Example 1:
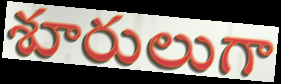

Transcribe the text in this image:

శూరులుగా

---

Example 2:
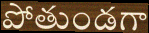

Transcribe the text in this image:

పోతుండగా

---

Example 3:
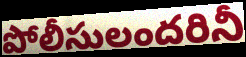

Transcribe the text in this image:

పోలీసులందరినీ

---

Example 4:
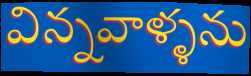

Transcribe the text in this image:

విన్నవాళ్ళను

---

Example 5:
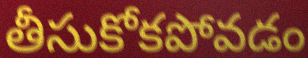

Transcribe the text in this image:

తీసుకోకపోవడం